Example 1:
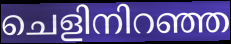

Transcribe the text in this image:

ചെളിനിറഞ്ഞ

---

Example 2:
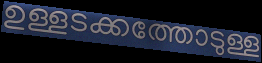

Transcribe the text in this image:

ഉള്ളടക്കത്തോടുള്ള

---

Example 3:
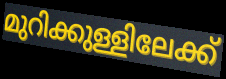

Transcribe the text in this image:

മുറിക്കുള്ളിലേക്ക്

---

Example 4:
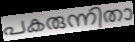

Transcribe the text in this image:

പകരുന്നിതാ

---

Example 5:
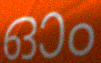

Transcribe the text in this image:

ഓം